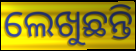
ଲେଖୁଛନ୍ତି